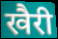
खैरी